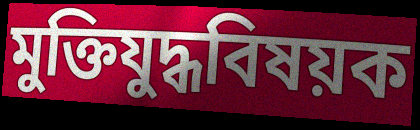
মুক্তিযুদ্ধবিষয়ক